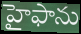
హైఫాను